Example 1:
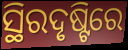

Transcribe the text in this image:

ସ୍ଥିରଦୃଷ୍ଟିରେ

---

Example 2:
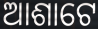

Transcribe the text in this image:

ଆଶାଟେ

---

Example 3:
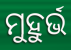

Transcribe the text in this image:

ମୁହୁର୍ଭ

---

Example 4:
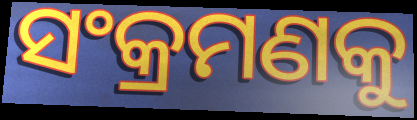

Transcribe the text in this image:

ସଂକ୍ରମଣକୁ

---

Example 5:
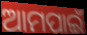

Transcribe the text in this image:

ଆମପାଇଁ